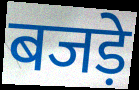
बजड़े